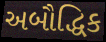
અબૌદ્ધિક